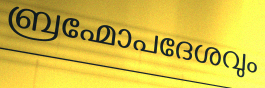
ബ്രഹ്മോപദേശവും